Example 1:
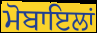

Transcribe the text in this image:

ਮੋਬਾਇਲਾਂ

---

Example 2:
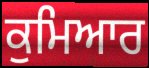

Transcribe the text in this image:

ਕੁਮਿਆਰ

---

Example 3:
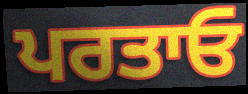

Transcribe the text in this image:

ਪਰਤਾਓ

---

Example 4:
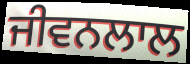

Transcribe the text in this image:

ਜੀਵਨਲਾਲ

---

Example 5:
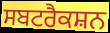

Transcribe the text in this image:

ਸਬਟਰੈਕਸ਼ਨ